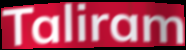
Taliram